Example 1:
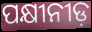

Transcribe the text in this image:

ପକ୍ଷୀନୀଡ଼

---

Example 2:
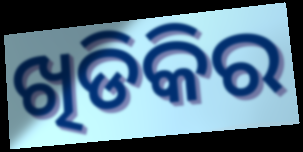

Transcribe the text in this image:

ଖିଡିକିର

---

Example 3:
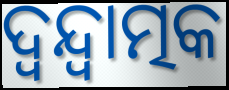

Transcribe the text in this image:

ଦ୍ଵନ୍ଦ୍ଵାତ୍ମକ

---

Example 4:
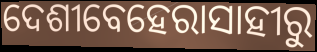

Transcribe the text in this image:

ଦେଶୀବେହେରାସାହୀରୁ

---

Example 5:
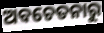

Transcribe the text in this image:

ଅବଚେତନାରୁ